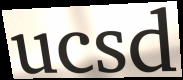
ucsd